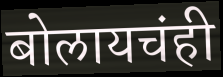
बोलायचंही